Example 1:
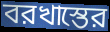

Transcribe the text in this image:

বরখাস্তের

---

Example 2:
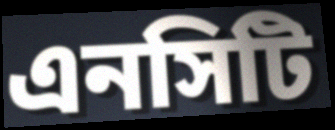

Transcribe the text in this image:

এনসিটি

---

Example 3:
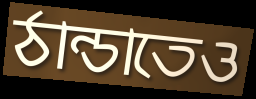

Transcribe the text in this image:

ঠান্ডাতেও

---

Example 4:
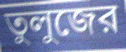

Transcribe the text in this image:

তুলুজের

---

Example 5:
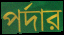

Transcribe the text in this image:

পর্দার